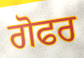
ਗੋਫਰ